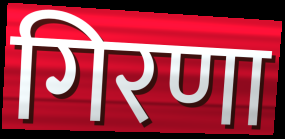
गिरणा